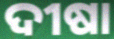
ଦୀଷା